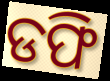
ଡଫି